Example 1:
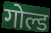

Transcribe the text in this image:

गोल्ड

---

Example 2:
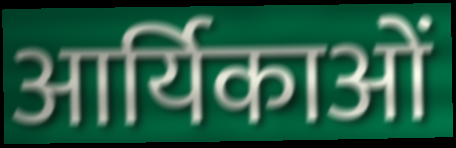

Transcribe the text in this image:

आर्यिकाओं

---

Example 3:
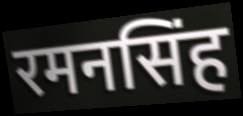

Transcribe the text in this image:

रमनसिंह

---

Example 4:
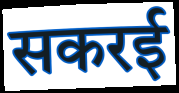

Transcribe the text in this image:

सकरई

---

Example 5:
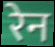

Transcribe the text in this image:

रेन